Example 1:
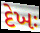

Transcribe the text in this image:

દેખઃ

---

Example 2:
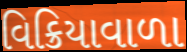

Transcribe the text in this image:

વિક્રિયાવાળા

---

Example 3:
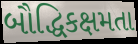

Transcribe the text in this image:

બૌદ્ધિકક્ષમતા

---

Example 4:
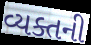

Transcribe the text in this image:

વ્યક્તની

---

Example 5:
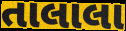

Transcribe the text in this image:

તાલાલા